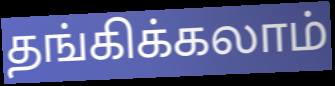
தங்கிக்கலாம்